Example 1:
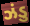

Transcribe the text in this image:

ઝંડુ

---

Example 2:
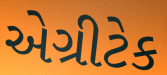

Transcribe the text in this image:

એગ્રીટેક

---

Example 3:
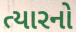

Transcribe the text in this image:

ત્યારનો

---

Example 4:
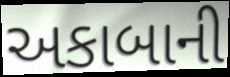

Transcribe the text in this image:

અકાબાની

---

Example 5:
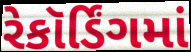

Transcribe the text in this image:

રેકૉર્ડિંગમાં